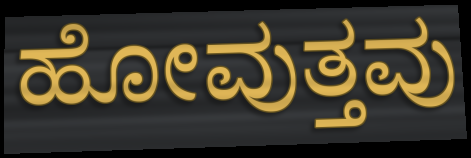
ಹೋವುತ್ತವು